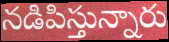
నడిపిస్తున్నారు